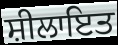
ਸ਼ੀਲਾਇਤ